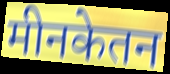
मीनकेतन